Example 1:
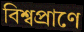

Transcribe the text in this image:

বিশ্বপ্রাণে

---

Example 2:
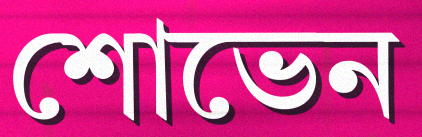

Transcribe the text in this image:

শোভেন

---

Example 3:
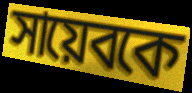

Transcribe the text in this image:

সায়েবকে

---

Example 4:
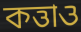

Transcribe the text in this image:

কত্তাও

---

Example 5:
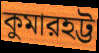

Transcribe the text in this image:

কুমারহট্ট